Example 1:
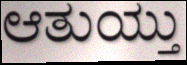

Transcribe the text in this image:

ಆತುಯ್ತು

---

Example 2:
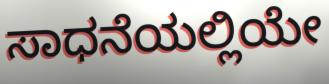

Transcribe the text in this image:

ಸಾಧನೆಯಲ್ಲಿಯೇ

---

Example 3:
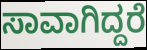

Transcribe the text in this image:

ಸಾವಾಗಿದ್ದರೆ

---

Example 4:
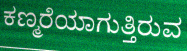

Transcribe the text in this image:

ಕಣ್ಮರೆಯಾಗುತ್ತಿರುವ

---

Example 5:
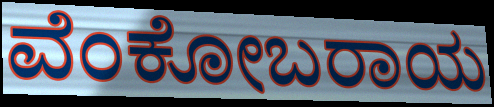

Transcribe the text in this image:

ವೆಂಕೋಬರಾಯ